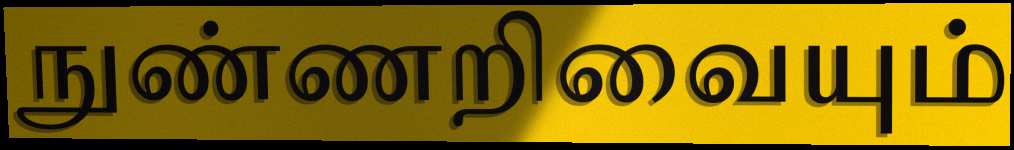
நுண்ணறிவையும்